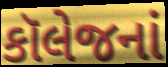
કૉલેજનાં